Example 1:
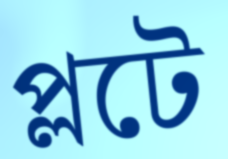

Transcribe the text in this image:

প্লটে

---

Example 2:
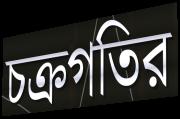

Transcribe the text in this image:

চক্রগতির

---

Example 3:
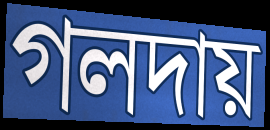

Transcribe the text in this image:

গলদায়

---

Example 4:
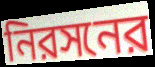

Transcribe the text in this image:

নিরসনের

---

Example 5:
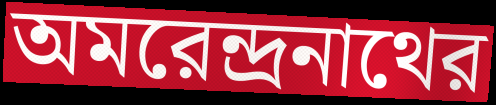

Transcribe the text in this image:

অমরেন্দ্রনাথের